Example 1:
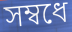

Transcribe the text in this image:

সম্বধে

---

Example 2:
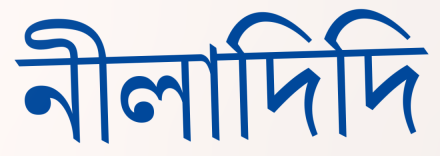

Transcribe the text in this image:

নীলাদিদি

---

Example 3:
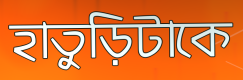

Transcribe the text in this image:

হাতুড়িটাকে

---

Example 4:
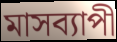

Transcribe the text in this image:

মাসব্যাপী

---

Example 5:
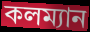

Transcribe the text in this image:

কলম্যান